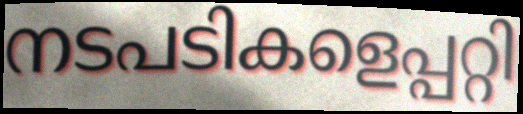
നടപടികളെപ്പറ്റി